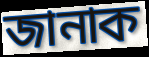
জানাক